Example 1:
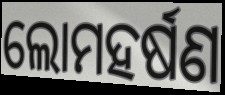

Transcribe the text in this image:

ଲୋମହର୍ଷଣ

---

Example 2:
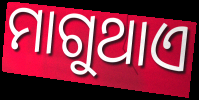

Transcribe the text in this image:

ମାଗୁଥାଏ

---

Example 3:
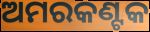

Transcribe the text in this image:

ଅମରକଣ୍ଟକ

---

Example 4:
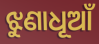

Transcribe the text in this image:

ଝୁଣାଧୂଆଁ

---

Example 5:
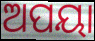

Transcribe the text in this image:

ଅପୟା